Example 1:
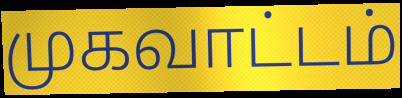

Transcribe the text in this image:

முகவாட்டம்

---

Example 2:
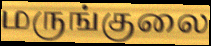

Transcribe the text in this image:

மருங்குலை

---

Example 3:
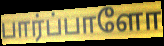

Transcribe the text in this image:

பார்ப்பாளோ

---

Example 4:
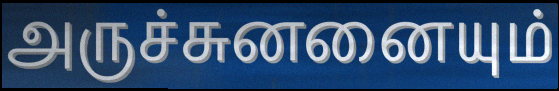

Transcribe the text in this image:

அருச்சுனனையும்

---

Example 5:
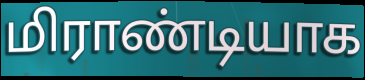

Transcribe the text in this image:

மிராண்டியாக